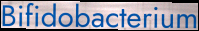
Bifidobacterium